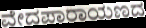
ವೇದಪಾರಾಯಣದ